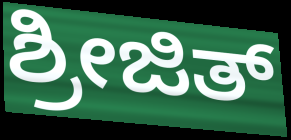
ಶ್ರೀಜಿತ್